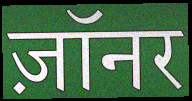
ज़ॉनर